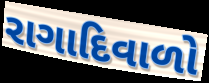
રાગાદિવાળો